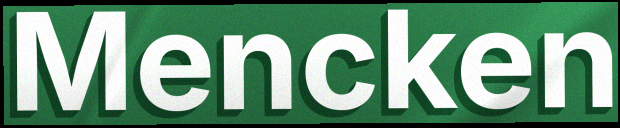
Mencken